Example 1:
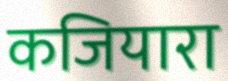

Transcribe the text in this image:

कजियारा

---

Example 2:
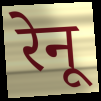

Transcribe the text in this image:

रेनू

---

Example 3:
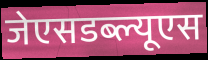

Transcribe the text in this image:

जेएसडब्ल्यूएस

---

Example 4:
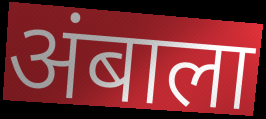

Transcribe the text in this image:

अंबाला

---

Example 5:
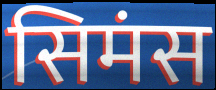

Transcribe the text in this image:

सिमंस